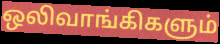
ஒலிவாங்கிகளும்